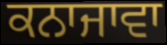
ਕਨਾਜਾਵਾ